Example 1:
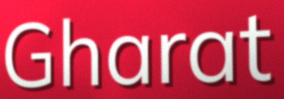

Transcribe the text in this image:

Gharat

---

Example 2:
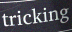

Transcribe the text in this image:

tricking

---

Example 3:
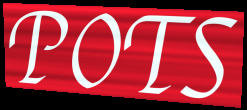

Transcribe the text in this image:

POTS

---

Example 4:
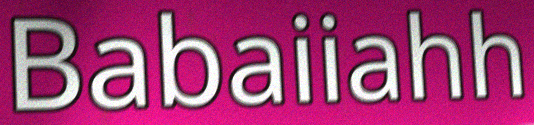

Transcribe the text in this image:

Babaiiahh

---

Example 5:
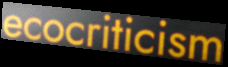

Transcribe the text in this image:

ecocriticism